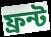
ফ্ৰন্ট